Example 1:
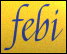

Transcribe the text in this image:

febi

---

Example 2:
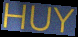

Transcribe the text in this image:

HUY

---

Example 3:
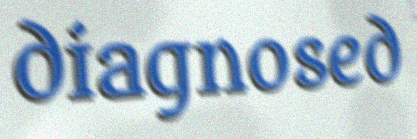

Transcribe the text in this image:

diagnosed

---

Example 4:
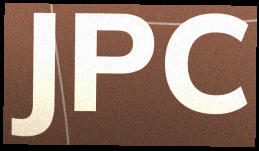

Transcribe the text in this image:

JPC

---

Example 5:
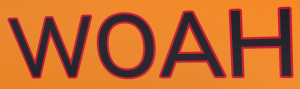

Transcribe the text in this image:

WOAH